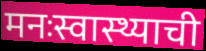
मनःस्वास्थ्याची